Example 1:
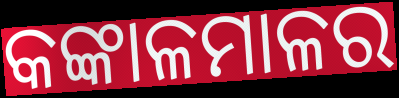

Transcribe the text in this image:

କଙ୍କାଳମାଳର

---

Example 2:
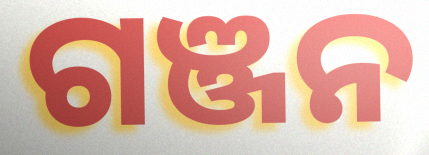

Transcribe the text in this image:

ଗଞ୍ଜନ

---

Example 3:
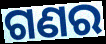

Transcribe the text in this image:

ଗଣର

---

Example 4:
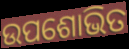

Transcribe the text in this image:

ଉପଶୋଭିତ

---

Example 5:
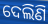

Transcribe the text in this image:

ଦେଲିଣି